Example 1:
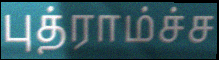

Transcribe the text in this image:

புத்ராம்ச்ச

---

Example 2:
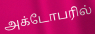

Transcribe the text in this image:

அக்டோபரில்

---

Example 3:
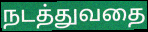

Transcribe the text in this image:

நடத்துவதை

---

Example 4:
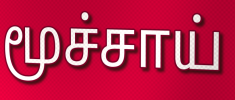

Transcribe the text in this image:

மூச்சாய்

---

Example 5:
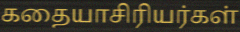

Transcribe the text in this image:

கதையாசிரியர்கள்